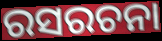
ରସରଚନା